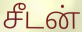
சீடன்